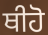
ਥੀਹੋ